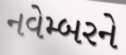
નવેમ્બરને